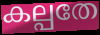
കല്പതേ